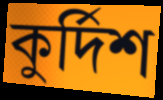
কুর্দিশ